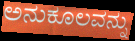
ಅನುಕೂಲವನ್ನು